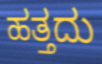
ಹತ್ತದು